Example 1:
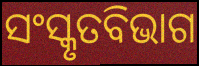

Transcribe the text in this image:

ସଂସ୍କୃତବିଭାଗ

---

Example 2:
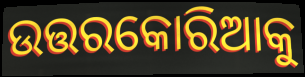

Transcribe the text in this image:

ଉତ୍ତରକୋରିଆକୁ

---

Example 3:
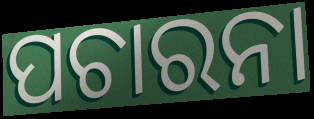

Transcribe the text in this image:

ପଚାରନା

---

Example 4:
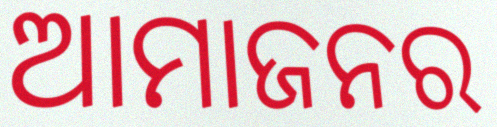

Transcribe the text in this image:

ଆମାଜନର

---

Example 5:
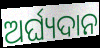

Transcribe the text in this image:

ଅର୍ଘ୍ୟଦାନ